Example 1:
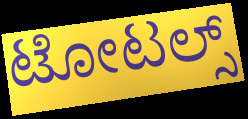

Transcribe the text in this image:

ಟೋಟಲ್ಸ್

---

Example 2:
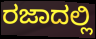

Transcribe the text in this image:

ರಜಾದಲ್ಲಿ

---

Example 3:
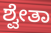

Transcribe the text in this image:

ಶ್ವೇತಾ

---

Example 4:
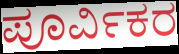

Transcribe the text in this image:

ಪೂರ್ವಿಕರ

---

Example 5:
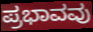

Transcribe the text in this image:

ಪ್ರಭಾವವು